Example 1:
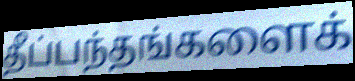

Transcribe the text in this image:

தீப்பந்தங்களைக்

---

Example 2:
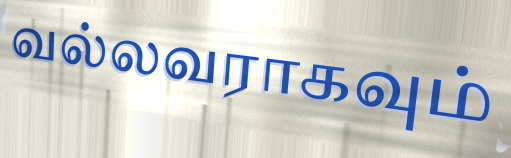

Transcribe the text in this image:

வல்லவராகவும்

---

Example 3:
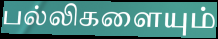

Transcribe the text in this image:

பல்லிகளையும்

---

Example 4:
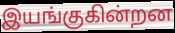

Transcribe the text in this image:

இயங்குகின்றன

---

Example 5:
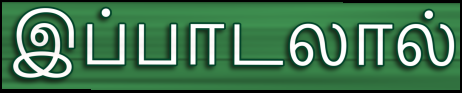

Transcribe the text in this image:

இப்பாடலால்